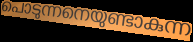
പൊടുന്നനെയുണ്ടാകുന്ന